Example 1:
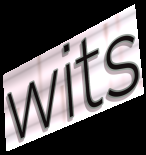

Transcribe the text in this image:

wits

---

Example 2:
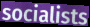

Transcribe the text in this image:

socialists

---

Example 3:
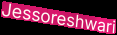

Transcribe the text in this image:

Jessoreshwari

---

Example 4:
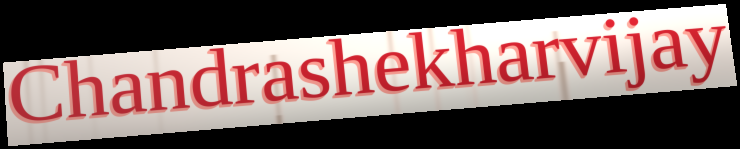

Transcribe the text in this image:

Chandrashekharvijay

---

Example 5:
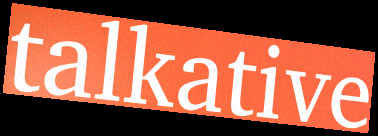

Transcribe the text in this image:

talkative